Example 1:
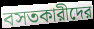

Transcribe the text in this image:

বসতকারীদের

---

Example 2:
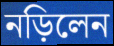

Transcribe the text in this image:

নড়িলেন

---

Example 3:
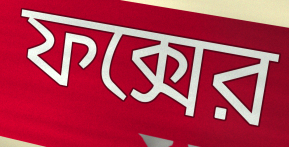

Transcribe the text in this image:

ফক্সের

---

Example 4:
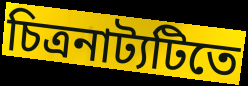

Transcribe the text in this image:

চিত্রনাট্যটিতে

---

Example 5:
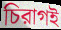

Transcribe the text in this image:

চিরাগই